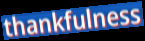
thankfulness